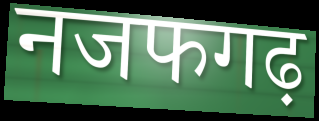
नजफगढ़